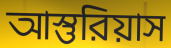
আস্তুরিয়াস